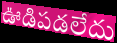
ఊడిపడలేదు